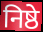
निष्ठे